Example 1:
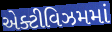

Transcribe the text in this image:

એક્ટીવિઝમમાં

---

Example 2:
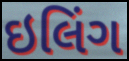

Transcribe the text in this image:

ઇલિંગ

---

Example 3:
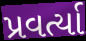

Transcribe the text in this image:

પ્રવર્ત્યા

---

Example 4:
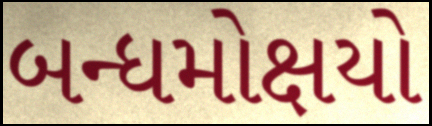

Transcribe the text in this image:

બન્ધમોક્ષયો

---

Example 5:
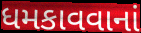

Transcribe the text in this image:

ધમકાવવાનાં